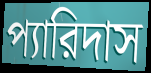
প্যারিদাস